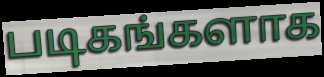
படிகங்களாக